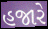
હજારે